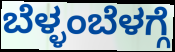
ಬೆಳ್ಳಂಬೆಳಗ್ಗೆ